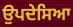
ਉਪਦੇਸਿਆ